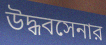
উদ্ধবসেনার